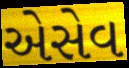
એસેવ